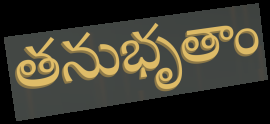
తనుభృతాం